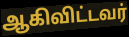
ஆகிவிட்டவர்